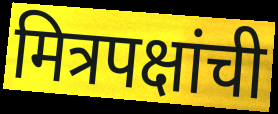
मित्रपक्षांची